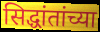
सिद्धांतांच्या